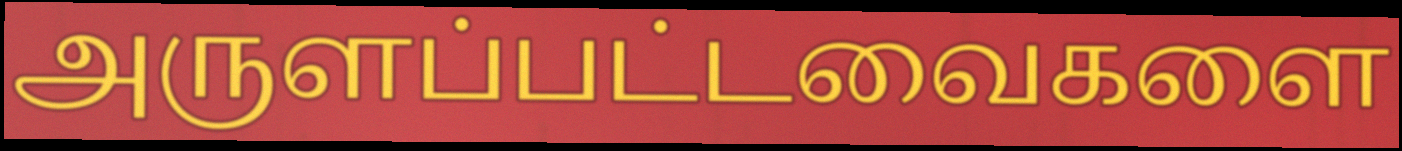
அருளப்பட்டவைகளை